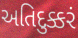
અતિદુક્કરં